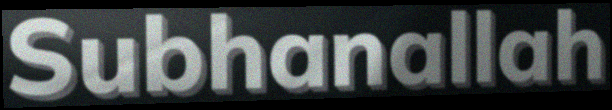
Subhanallah